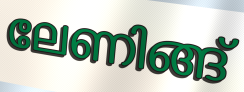
ലേണിങ്ങ്